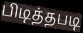
பிடித்தபடி